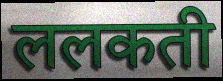
ललकती